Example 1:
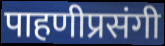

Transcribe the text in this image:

पाहणीप्रसंगी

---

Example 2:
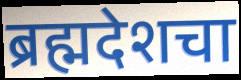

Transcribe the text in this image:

ब्रह्मदेशचा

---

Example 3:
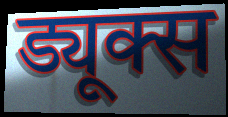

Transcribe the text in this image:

ड्यूक्‍स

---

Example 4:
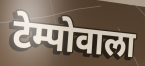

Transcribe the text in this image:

टेम्पोवाला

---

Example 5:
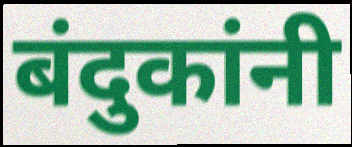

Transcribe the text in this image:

बंदुकांनी